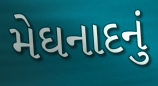
મેઘનાદનું